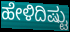
ಹೇಳಿದಿಷ್ಟು